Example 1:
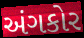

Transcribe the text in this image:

અંગકોર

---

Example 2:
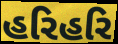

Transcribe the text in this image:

હરિહરિ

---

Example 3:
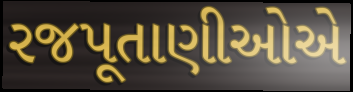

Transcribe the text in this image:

રજપૂતાણીઓએ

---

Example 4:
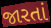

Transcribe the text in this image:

જારતાં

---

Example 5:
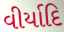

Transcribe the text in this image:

વીર્યાદિ